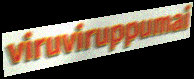
viruviruppumai